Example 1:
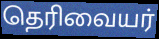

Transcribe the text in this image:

தெரிவையர்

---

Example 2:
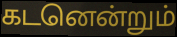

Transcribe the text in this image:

கடனென்றும்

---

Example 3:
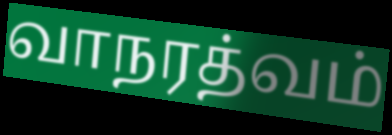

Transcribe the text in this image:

வாநரத்வம்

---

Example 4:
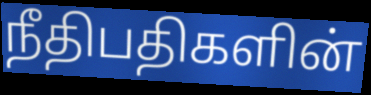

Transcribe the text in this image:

நீதிபதிகளின்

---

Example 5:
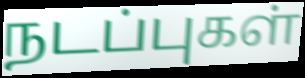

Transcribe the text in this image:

நடப்புகள்